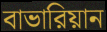
বাভারিয়ান